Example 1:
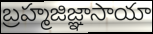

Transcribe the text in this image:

బ్రహ్మజిజ్ఞాసాయా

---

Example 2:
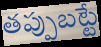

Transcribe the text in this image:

తప్పుబట్టే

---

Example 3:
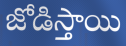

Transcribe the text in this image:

జోడిస్తాయి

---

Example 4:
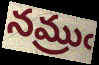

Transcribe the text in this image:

నమ్రుఁ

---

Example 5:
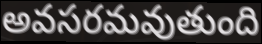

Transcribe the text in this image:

అవసరమవుతుంది